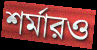
শর্মারও